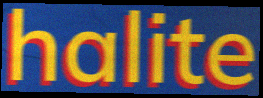
halite